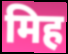
मिह